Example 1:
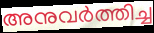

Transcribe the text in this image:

അനുവർത്തിച്ച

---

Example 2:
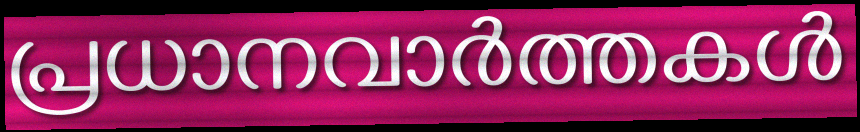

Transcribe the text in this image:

പ്രധാനവാർത്തകൾ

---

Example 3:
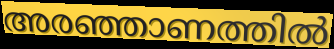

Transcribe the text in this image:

അരഞ്ഞാണത്തിൽ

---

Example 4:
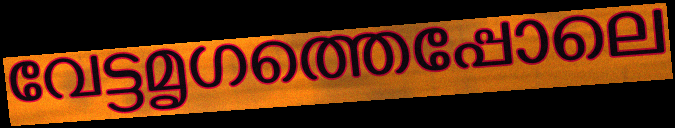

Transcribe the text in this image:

വേട്ടമൃഗത്തെപ്പോലെ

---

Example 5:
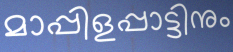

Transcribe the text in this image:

മാപ്പിളപ്പാട്ടിനും